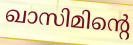
ഖാസിമിന്റെ